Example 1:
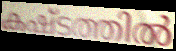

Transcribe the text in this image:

കഷ്ടത്തിൽ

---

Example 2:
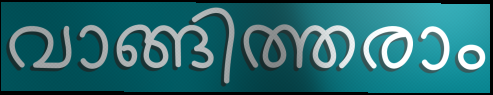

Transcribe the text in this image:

വാങ്ങിത്തരാം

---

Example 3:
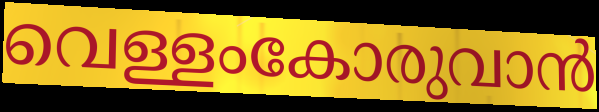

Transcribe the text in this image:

വെള്ളംകോരുവാൻ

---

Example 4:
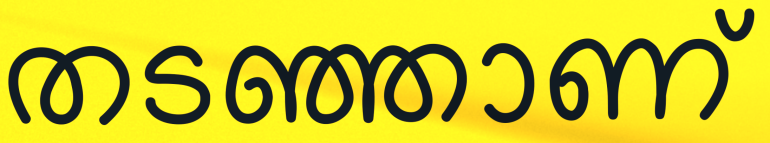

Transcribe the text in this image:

തടഞ്ഞാണ്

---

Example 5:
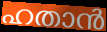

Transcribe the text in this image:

ഹതാൻ